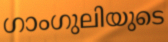
ഗാംഗുലിയുടെ